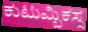
ಕುಟುಮ್ಬಿಕಸ್ಸ